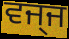
ਵਜ੍ਜ